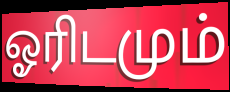
ஓரிடமும்